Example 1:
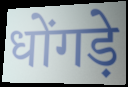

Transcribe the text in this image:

धोंगड़े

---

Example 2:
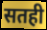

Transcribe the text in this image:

सतही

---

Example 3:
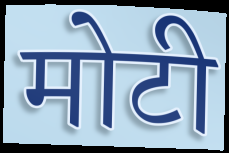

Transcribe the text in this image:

मोटी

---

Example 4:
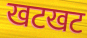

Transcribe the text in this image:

खटखट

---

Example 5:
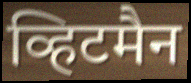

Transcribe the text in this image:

व्हिटमैन